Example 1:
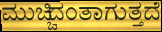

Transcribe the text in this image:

ಮುಚ್ಚಿದಂತಾಗುತ್ತದೆ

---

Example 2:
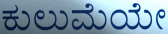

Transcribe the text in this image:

ಕುಲುಮೆಯೇ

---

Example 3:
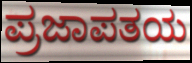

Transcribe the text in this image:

ಪ್ರಜಾಪತಯ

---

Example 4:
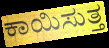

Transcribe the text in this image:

ಕಾಯಿಸುತ್ತ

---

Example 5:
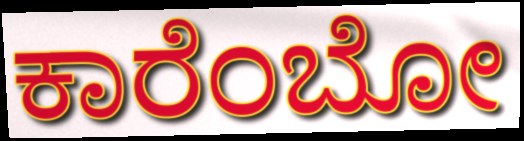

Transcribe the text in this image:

ಕಾರೆಂಬೋ